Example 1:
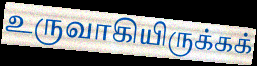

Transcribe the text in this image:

உருவாகியிருக்கக்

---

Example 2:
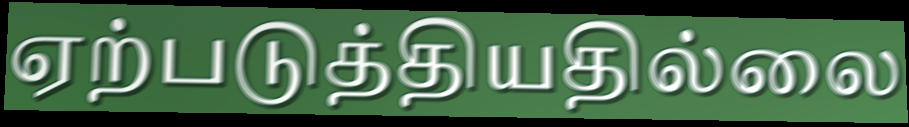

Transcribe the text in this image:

ஏற்படுத்தியதில்லை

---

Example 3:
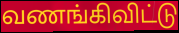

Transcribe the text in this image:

வணங்கிவிட்டு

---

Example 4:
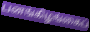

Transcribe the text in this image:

பனங்கிழங்கைப்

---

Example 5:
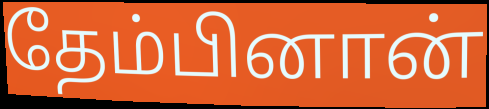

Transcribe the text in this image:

தேம்பினான்